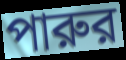
পারুর